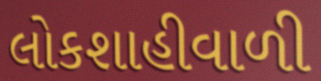
લોકશાહીવાળી